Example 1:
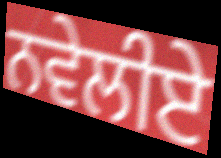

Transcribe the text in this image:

ਨਵੇਲੀਏ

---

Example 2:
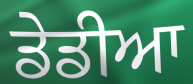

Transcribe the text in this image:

ਡੇਡੀਆ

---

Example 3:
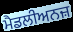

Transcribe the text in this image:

ਮੈਡਲੀਅਨਜ਼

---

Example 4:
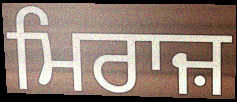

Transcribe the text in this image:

ਮਿਰਾਜ਼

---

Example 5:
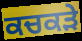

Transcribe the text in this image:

ਕਚਕੜੇ